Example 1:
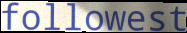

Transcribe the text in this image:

followest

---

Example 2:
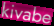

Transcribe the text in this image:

kivabe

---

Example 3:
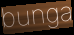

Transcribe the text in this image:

bunga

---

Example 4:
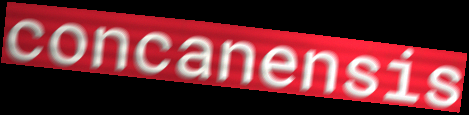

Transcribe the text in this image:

concanensis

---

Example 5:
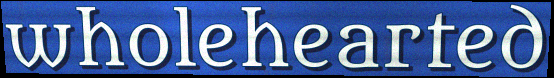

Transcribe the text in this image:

wholehearted